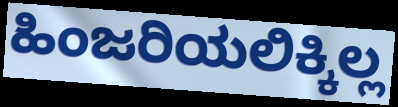
ಹಿಂಜರಿಯಲಿಕ್ಕಿಲ್ಲ